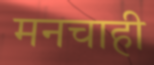
मनचाही